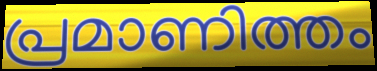
പ്രമാണിത്തം